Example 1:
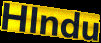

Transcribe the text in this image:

HIndu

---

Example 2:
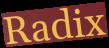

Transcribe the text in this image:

Radix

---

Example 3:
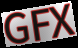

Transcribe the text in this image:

GFX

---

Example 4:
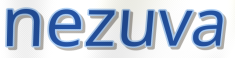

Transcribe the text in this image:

nezuva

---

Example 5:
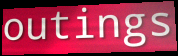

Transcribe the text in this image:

outings